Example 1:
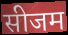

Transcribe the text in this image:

सीजम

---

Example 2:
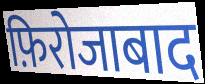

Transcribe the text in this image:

फ़िरोजाबाद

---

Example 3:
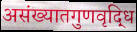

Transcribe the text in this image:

असंख्यातगुणवृद्धि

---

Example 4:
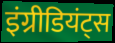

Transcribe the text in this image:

इंग्रीडियंट्स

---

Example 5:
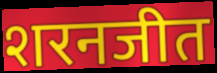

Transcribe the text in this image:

शरनजीत